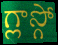
గ్లాస్గో